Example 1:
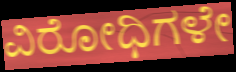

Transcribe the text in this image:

ವಿರೋಧಿಗಳೇ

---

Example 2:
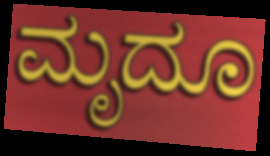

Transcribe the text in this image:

ಮೃದೂ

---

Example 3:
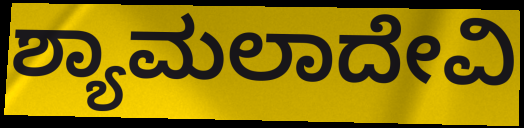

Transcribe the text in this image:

ಶ್ಯಾಮಲಾದೇವಿ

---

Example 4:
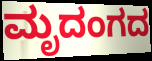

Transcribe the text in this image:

ಮೃದಂಗದ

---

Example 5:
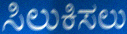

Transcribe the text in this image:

ಸಿಲುಕಿಸಲು